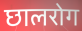
छालरोग